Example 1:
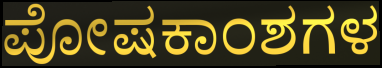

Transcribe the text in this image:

ಪೋಷಕಾಂಶಗಳ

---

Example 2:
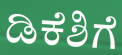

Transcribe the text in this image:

ಡಿಕೆಶಿಗೆ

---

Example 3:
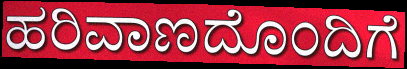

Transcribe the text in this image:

ಹರಿವಾಣದೊಂದಿಗೆ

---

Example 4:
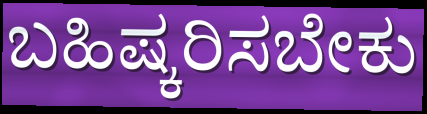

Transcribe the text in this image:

ಬಹಿಷ್ಕರಿಸಬೇಕು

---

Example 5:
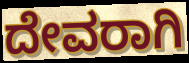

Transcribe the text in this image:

ದೇವರಾಗಿ